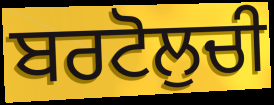
ਬਰਟੋਲੁਚੀ